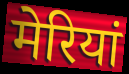
मेरियां